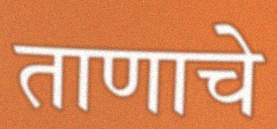
ताणाचे